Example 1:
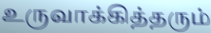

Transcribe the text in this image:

உருவாக்கித்தரும்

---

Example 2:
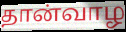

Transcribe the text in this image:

தான்வாழ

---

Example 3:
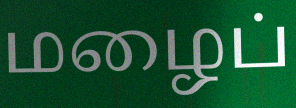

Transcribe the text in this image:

மழைப்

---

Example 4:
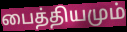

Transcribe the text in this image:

பைத்தியமும்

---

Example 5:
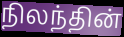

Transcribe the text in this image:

நிலந்தின்